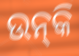
ଉନ୍‌କି